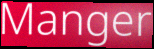
Manger